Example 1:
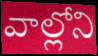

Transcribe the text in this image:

వాల్లోని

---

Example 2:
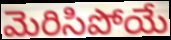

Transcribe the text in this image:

మెరిసిపోయే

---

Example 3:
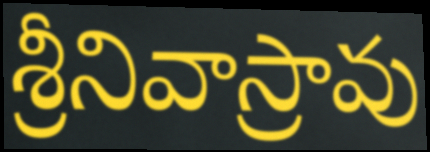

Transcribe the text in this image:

శ్రీనివాస్రావు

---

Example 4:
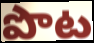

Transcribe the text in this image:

పొట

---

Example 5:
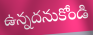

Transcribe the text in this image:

ఉన్నదనుకోండి